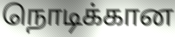
நொடிக்கான